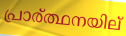
പ്രാര്ത്ഥനയില്